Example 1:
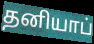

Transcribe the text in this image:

தனியாப்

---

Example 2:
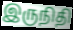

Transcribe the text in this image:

இருநிதி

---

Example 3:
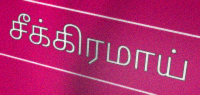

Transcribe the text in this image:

சீக்கிரமாய்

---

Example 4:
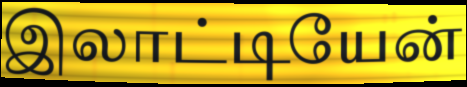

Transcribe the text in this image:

இலாட்டியேன்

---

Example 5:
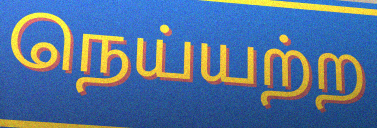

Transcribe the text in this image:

நெய்யற்ற